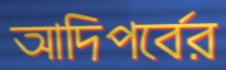
আদিপর্বের